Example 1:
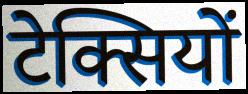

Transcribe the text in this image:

टेक्सियों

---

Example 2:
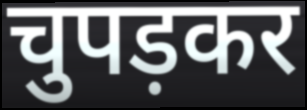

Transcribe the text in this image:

चुपड़कर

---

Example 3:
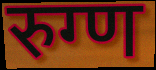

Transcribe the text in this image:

रुग्ण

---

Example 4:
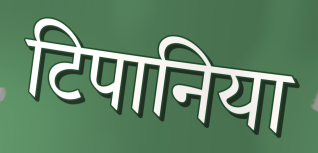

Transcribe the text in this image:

टिपानिया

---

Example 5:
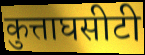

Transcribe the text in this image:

कुत्ताघसीटी